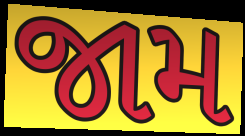
જામ